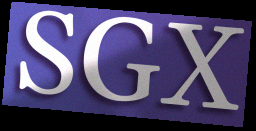
SGX